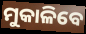
ମୁକାଳିବେ